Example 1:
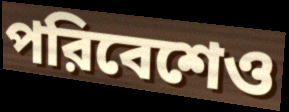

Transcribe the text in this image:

পরিবেশেও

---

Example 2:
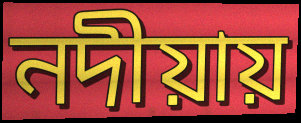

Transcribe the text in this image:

নদীয়ায়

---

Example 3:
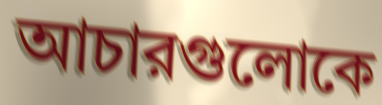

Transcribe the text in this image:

আচারগুলোকে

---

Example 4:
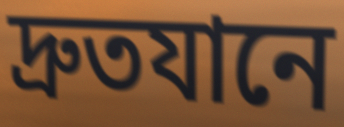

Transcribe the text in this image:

দ্রুতযানে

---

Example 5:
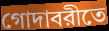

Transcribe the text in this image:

গোদাবরীতে